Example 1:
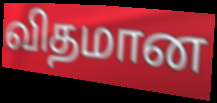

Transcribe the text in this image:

விதமான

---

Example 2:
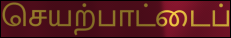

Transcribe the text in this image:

செயற்பாட்டைப்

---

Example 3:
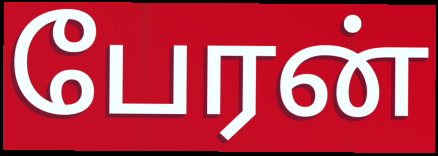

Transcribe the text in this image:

பேரன்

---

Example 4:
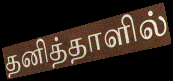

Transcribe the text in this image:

தனித்தாளில்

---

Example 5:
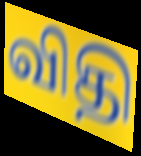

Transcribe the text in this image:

விதி